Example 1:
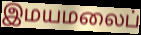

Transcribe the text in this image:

இமயமலைப்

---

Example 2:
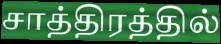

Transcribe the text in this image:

சாத்திரத்தில்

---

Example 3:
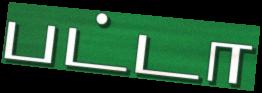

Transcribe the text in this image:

பட்டா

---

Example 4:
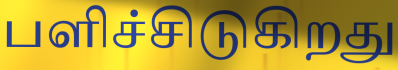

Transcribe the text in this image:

பளிச்சிடுகிறது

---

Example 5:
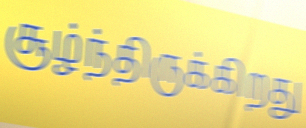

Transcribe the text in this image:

சூழ்ந்திருக்கிறது